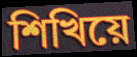
শিখিয়ে